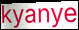
kyanye